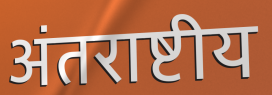
अंतराष्टीय